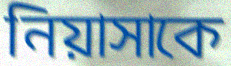
নিয়াসাকে